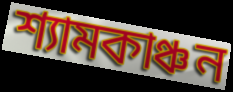
শ্যামকাঞ্চন